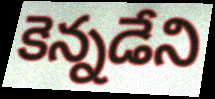
కెన్నడేని